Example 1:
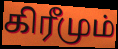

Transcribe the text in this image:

கிரீமும்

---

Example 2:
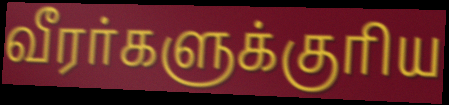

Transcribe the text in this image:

வீரர்களுக்குரிய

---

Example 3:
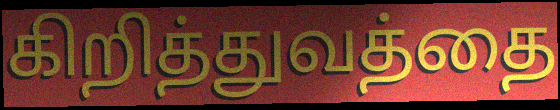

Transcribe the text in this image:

கிறித்துவத்தை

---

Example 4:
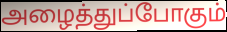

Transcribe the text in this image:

அழைத்துப்போகும்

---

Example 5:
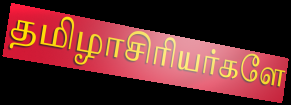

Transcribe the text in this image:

தமிழாசிரியர்களே